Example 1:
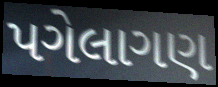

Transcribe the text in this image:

પગેલાગણ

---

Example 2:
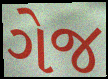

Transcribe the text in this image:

ગેજ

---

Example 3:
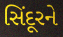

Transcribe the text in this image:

સિંદૂરને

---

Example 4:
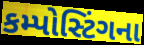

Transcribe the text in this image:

કમ્પોસ્ટિંગના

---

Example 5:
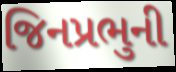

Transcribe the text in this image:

જિનપ્રભુની